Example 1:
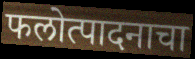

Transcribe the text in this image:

फलोत्पादनाचा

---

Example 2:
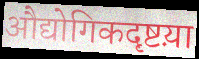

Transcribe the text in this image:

औद्योगिकदृष्टय़ा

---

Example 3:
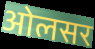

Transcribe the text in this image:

ओलसर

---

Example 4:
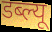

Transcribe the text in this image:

डब्ल्यू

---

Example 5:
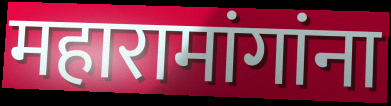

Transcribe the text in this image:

महारामांगांना